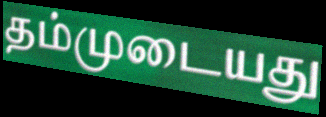
தம்முடையது